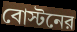
বোস্টনের